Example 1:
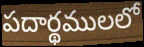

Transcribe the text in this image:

పదార్థములలో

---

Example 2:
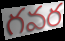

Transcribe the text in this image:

గవర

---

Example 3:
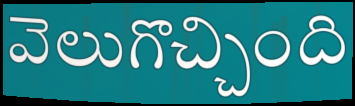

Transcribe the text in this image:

వెలుగొచ్చింది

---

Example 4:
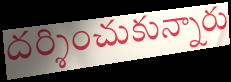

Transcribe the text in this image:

దర్శించుకున్నారు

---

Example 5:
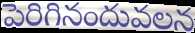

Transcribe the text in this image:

పెరిగినందువలన